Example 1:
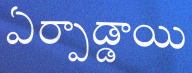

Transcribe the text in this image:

ఏర్పాడ్డాయి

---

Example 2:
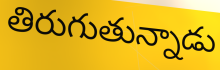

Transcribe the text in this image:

తిరుగుతున్నాడు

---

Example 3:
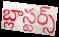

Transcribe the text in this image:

బ్లాస్టర్స్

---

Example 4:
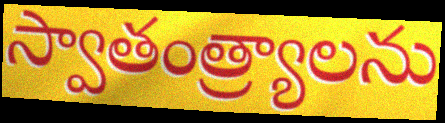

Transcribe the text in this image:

స్వాతంత్ర్యాలను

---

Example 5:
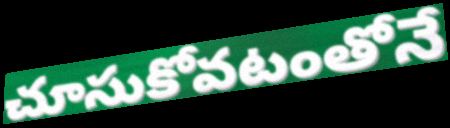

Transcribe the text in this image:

చూసుకోవటంతోనే